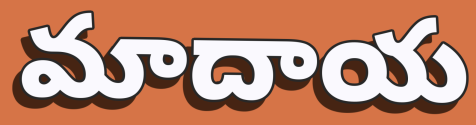
మాదాయ